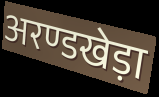
अरण्डखेड़ा